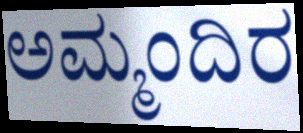
ಅಮ್ಮಂದಿರ